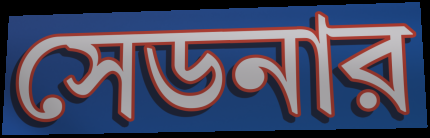
সেডনার